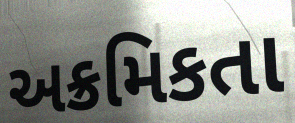
અક્રમિકતા